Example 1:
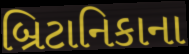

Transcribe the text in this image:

બ્રિટાનિકાના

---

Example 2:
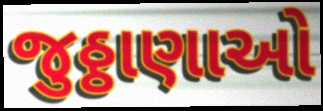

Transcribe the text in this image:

જુઠ્ઠાણાઓ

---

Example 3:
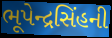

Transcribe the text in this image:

ભૂપેન્દ્રસિંહની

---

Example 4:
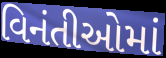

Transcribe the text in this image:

વિનંતીઓમાં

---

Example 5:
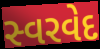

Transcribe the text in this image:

સ્વરવેદ